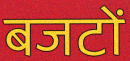
बजटों